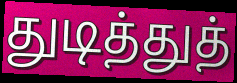
துடித்துத்